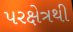
પરક્ષેત્રથી